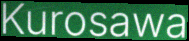
Kurosawa